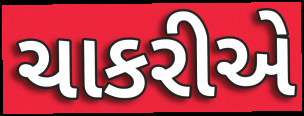
ચાકરીએ